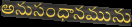
అనుసంధానమును